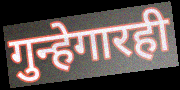
गुन्हेगारही